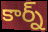
కార్న్